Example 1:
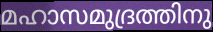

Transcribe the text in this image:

മഹാസമുദ്രത്തിനു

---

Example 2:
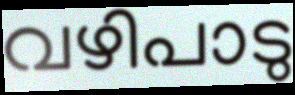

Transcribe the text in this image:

വഴിപാടു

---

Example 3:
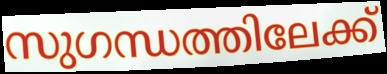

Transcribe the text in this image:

സുഗന്ധത്തിലേക്ക്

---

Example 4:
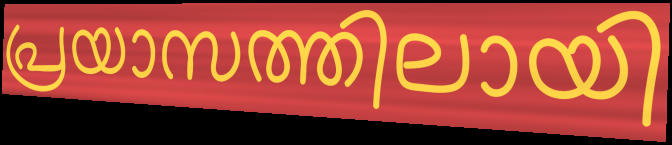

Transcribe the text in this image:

പ്രയാസത്തിലായി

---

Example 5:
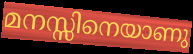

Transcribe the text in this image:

മനസ്സിനെയാണു